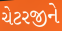
ચેટરજીને